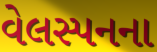
વેલસ્પનના